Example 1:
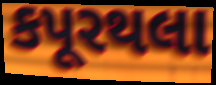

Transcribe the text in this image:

કપૂરથલા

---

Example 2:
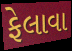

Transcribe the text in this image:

ફેલાવા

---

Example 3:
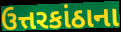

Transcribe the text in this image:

ઉત્તરકાંઠાના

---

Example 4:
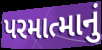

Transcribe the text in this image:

પરમાત્માનું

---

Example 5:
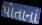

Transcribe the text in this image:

પોતાનાં